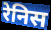
रेनिस